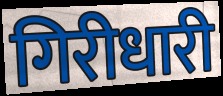
गिरीधारी